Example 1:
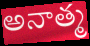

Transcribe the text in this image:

అనాత్మ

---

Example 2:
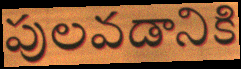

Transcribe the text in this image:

పులవడానికి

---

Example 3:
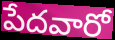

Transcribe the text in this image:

పేదవారో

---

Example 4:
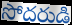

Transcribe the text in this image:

సోదరుడి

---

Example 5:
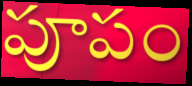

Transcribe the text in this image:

పూపం